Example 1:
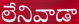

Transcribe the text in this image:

లేనివాడా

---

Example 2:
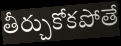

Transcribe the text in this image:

తీర్చుకోకపోతే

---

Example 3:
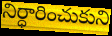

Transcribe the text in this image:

నిర్ధారించుకుని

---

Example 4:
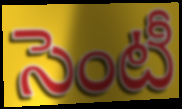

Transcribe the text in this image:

సెంటీ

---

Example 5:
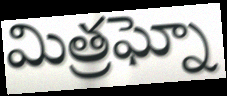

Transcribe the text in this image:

మిత్రఘ్నో